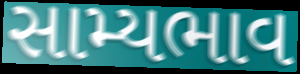
સામ્યભાવ